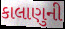
કાલાણુની